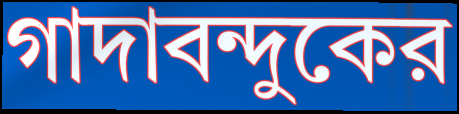
গাদাবন্দুকের